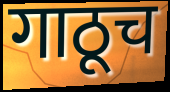
गाठूच